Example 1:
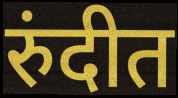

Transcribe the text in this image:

रुंदीत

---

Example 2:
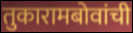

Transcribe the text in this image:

तुकारामबोवांची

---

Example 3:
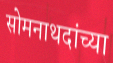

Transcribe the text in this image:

सोमनाथदांच्या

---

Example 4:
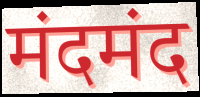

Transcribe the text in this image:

मंदमंद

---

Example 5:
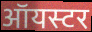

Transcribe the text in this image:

ऑयस्टर